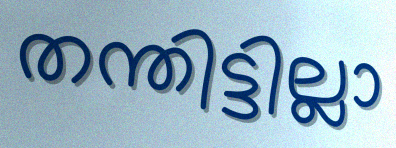
തന്തിട്ടില്ലാ